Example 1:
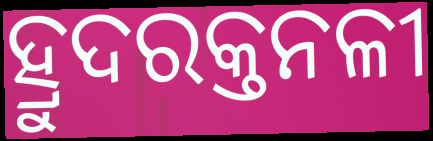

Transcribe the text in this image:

ହ୍ରୁଦରକ୍ତନଳୀ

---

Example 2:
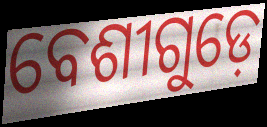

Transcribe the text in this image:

ବେଶୀଗୁଡ଼େ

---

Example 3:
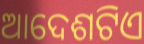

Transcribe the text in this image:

ଆଦେଶଟିଏ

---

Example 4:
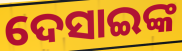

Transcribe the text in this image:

ଦେସାଇଙ୍କ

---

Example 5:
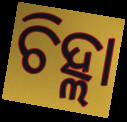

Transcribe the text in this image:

ଚିହ୍ଲା